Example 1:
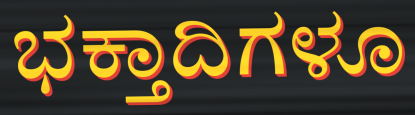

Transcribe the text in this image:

ಭಕ್ತಾದಿಗಳೂ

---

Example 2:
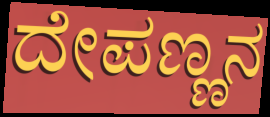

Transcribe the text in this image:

ದೇಪಣ್ಣನ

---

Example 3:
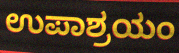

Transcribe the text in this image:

ಉಪಾಶ್ರಯಂ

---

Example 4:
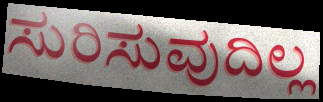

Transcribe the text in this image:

ಸುರಿಸುವುದಿಲ್ಲ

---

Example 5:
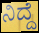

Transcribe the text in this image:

ನಿದ್ದೆ